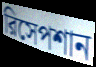
রিসেপশান